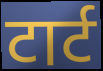
टार्ट